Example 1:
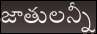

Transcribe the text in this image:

జాతులన్నీ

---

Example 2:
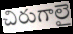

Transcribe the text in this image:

చిరుగాలై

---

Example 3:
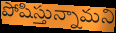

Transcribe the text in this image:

పోషిస్తున్నామని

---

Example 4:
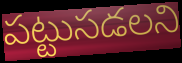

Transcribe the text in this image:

పట్టుసడలని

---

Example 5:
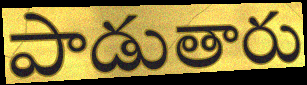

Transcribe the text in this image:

పాడుతారు